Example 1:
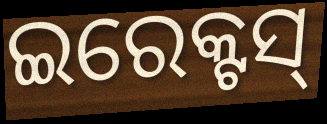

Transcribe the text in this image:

ଇରେକ୍ଟସ୍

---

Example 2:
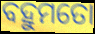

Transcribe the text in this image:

ବହୁମତୋ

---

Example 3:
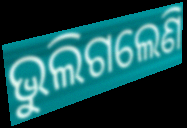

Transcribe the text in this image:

ଭୁଲିଗଲେଣି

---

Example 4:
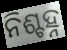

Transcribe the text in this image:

ନିଶ୍ଚହ୍ନ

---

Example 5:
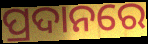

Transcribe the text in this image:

ପ୍ରଦାନରେ